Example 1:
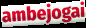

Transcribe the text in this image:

ambejogai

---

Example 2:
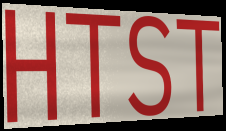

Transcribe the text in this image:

HTST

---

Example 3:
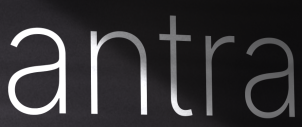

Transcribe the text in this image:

antra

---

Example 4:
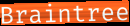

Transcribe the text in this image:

Braintree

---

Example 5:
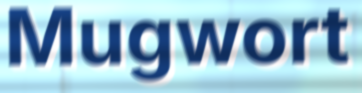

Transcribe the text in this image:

Mugwort